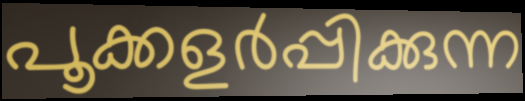
പൂക്കളർപ്പിക്കുന്ന